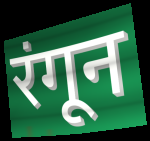
रंगून